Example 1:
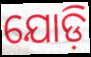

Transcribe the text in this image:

ଯୋଡ଼ି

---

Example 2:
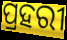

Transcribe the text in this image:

ପ୍ରହରୀ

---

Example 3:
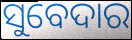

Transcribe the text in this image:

ସୁବେଦାର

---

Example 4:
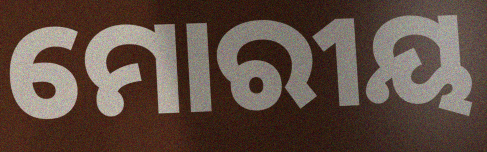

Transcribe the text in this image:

ମୋରୀୟ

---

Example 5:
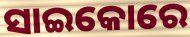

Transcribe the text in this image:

ସାଇକୋରେ